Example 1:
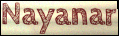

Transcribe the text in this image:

Nayanar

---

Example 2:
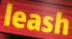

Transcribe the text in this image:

leash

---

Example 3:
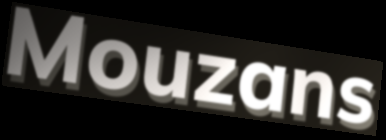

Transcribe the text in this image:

Mouzans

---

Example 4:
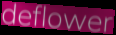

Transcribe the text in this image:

deflower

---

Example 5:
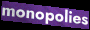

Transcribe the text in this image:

monopolies